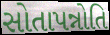
સોતાપન્નોતિ